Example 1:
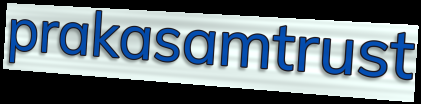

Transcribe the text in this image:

prakasamtrust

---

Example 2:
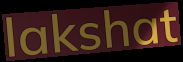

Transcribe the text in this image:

lakshat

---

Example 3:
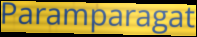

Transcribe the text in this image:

Paramparagat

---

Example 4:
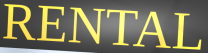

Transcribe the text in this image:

RENTAL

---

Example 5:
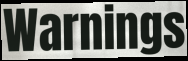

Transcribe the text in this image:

Warnings